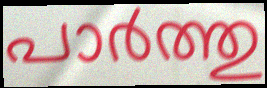
പാർത്തു